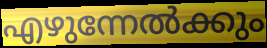
എഴുന്നേൽക്കും